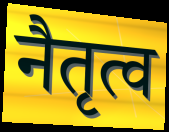
नैतृत्व